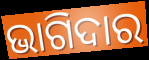
ଭାଗିଦାର